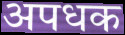
अपधक